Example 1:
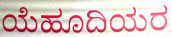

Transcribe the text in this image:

ಯೆಹೂದಿಯರ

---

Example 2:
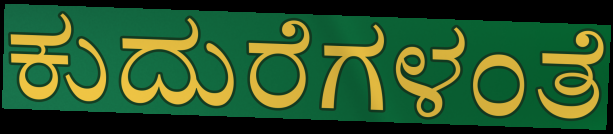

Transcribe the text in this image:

ಕುದುರೆಗಳಂತೆ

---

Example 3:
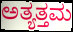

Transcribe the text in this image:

ಅತ್ಯತ್ತಮ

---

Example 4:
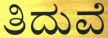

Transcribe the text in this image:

ತಿದುವೆ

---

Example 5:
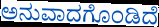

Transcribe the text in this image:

ಅನುವಾದಗೊಂಡಿದೆ